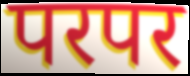
परपर